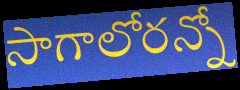
సాగాలోరన్నో